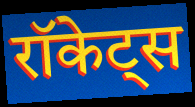
रॉकेट्स